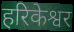
हरिकेश्वर